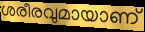
ശരീരവുമായാണ്